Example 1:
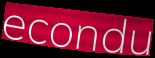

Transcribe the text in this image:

econdu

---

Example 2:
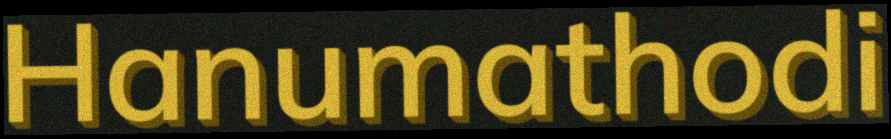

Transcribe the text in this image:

Hanumathodi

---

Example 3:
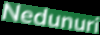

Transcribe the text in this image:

Nedunuri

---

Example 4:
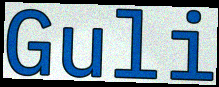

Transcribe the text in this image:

Guli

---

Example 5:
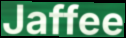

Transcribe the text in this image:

Jaffee